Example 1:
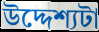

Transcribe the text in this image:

উদ্দেশ্যটা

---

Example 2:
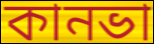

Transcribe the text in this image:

কানভা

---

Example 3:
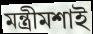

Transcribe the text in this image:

মন্ত্রীমশাই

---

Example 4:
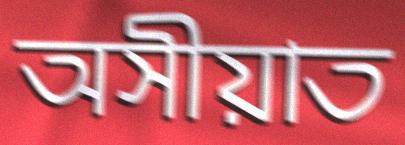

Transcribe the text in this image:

অসীয়াত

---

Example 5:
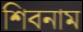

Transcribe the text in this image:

শিবনাম